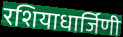
रशियाधार्जिणी